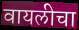
वायलीचा